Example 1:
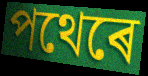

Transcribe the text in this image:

পথেৰে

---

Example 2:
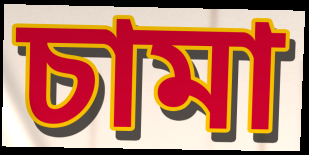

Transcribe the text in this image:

চামা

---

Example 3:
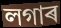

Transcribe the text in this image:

লগাৰ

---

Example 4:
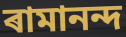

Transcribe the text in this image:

ৰামানন্দ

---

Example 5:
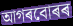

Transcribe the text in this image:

আগৰবোৰৰ